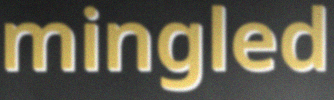
mingled